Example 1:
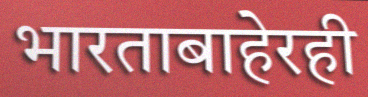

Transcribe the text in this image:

भारताबाहेरही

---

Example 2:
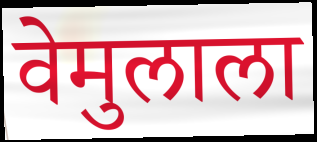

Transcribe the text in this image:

वेमुलाला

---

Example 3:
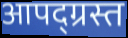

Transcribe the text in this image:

आपद्ग्रस्त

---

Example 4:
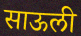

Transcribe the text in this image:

साऊली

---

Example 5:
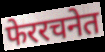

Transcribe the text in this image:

फेररचनेत